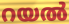
റയൽ